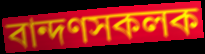
বান্দণসকলক